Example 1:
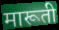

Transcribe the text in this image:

मारूती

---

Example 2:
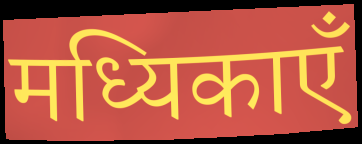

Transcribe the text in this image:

मध्यिकाएँ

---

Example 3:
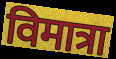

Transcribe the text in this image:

विमात्रा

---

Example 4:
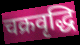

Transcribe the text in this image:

चक्रवृद्धि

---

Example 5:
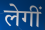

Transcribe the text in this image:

लेगीं